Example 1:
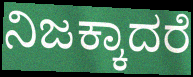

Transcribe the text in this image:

ನಿಜಕ್ಕಾದರೆ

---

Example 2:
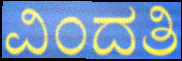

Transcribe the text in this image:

ವಿಂದತಿ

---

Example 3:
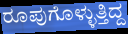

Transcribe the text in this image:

ರೂಪುಗೊಳ್ಳುತ್ತಿದ್ದ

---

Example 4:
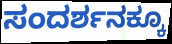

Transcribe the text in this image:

ಸಂದರ್ಶನಕ್ಕೂ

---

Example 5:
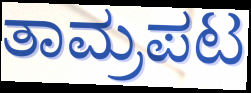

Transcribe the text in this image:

ತಾಮ್ರಪಟ